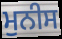
ਮੁਨੀਸ